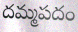
దమ్మపదం